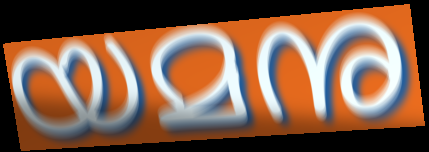
യമനു